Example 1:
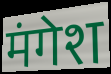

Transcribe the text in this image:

मंगेश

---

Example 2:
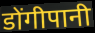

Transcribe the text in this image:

डोंगीपानी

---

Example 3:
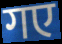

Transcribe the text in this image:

गए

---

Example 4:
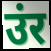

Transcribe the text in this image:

उंर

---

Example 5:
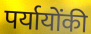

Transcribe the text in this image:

पर्यायोंकी